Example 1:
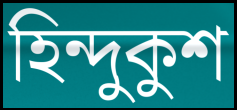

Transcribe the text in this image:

হিন্দুকুশ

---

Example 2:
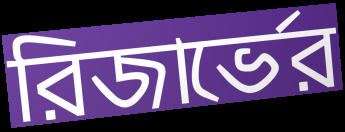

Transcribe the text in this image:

রিজার্ভের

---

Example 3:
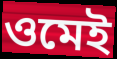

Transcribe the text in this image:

ওমেই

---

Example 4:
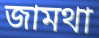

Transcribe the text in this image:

জামথা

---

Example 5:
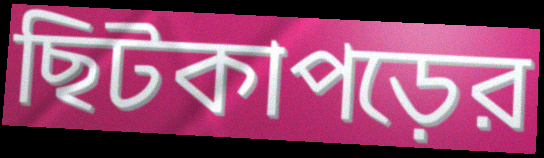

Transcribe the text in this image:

ছিটকাপড়ের